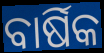
ବାର୍ଷିକ